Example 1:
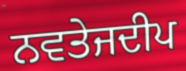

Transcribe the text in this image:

ਨਵਤੇਜਦੀਪ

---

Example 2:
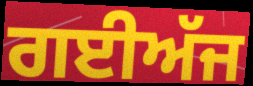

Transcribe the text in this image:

ਗਈਅੱਜ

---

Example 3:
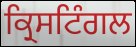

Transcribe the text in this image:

ਕ੍ਰਿਸਟਿੰਗਲ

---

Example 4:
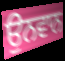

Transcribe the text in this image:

ਉਨਵਾਨ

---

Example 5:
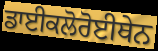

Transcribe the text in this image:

ਡਾਈਕਲੋਰੋਈਥੇਨ